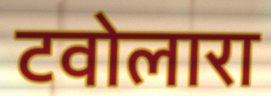
टवोलारा